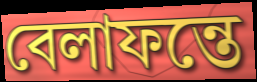
বেলাফন্তে